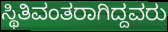
ಸ್ಥಿತಿವಂತರಾಗಿದ್ದವರು